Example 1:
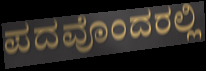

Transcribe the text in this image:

ಪದವೊಂದರಲ್ಲಿ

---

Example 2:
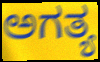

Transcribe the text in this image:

ಅಗತ್ಯ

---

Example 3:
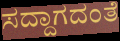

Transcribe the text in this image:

ಸದ್ದಾಗದಂತೆ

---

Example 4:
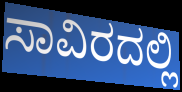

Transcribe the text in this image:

ಸಾವಿರದಲ್ಲಿ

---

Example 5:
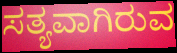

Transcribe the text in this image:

ಸತ್ಯವಾಗಿರುವ